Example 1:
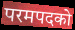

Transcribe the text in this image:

परमपदको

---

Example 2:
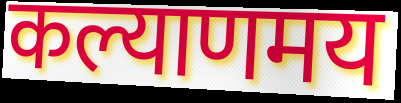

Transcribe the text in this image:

कल्याणमय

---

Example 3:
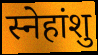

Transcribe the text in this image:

स्नेहांशु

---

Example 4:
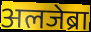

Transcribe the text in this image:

अलजेब्रा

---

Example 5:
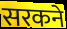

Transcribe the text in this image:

सरकने